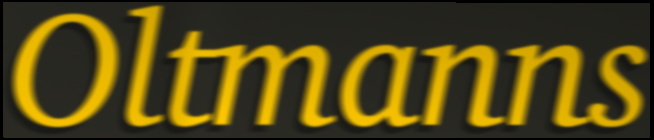
Oltmanns